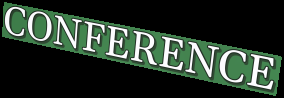
CONFERENCE